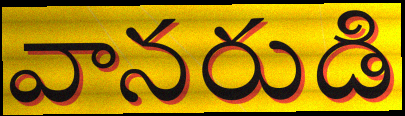
వానరుడి